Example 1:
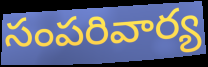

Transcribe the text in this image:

సంపరివార్య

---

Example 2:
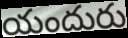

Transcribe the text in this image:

యందురు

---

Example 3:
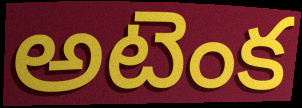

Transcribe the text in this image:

అటెంక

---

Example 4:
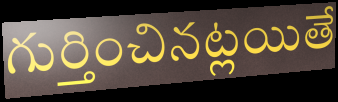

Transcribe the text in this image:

గుర్తించినట్లయితే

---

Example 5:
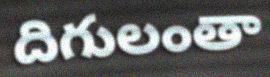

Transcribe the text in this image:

దిగులంతా